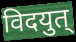
विदयुत्